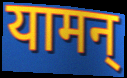
यामन्